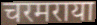
चरमराया